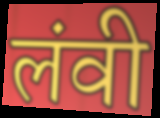
लंवी